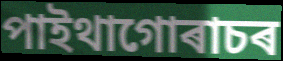
পাইথাগোৰাচৰ